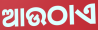
ଆଉଠାଏ